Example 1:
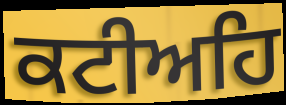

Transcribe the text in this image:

ਕਟੀਅਹਿ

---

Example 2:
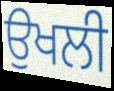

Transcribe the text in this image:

ਉਖਲੀ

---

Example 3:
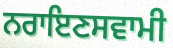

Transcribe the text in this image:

ਨਰਾਇਣਸਵਾਮੀ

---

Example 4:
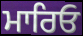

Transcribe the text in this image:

ਮਾਰਿਓ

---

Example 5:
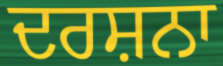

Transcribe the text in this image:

ਦਰਸ਼ਨਾ